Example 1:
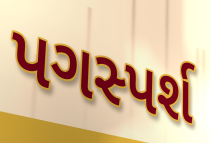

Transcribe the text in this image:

પગસ્પર્શ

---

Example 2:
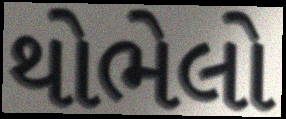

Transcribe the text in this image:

થોભેલો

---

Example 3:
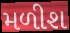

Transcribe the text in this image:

મળીશ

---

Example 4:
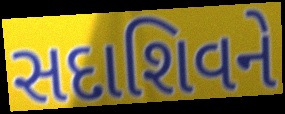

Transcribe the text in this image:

સદાશિવને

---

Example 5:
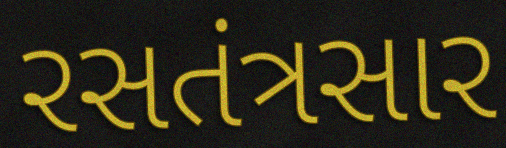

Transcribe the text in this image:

રસતંત્રસાર